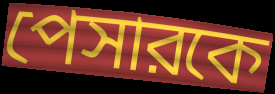
পেসারকে